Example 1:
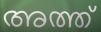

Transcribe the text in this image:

അത്ത്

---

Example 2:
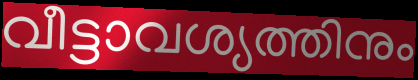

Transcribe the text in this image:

വീട്ടാവശ്യത്തിനും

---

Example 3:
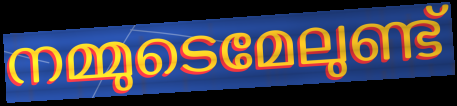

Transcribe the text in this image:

നമ്മുടെമേലുണ്ട്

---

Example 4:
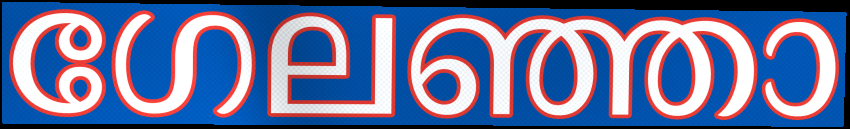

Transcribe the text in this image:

ഗേലഞ്ഞാ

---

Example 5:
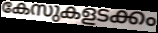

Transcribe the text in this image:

കേസുകളടക്കം